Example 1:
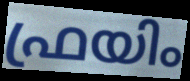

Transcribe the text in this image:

ഫ്രയിം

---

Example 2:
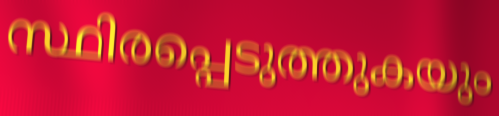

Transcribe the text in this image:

സ്ഥിരപ്പെടുത്തുകയും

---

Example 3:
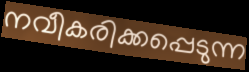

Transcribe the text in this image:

നവീകരിക്കപ്പെടുന്ന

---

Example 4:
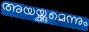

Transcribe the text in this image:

അയയ്ക്കുമെന്നും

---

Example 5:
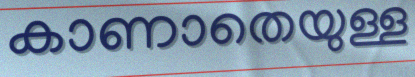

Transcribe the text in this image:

കാണാതെയുള്ള